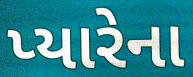
પ્યારેના